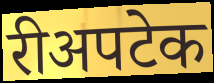
रीअपटेक